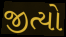
જીત્યો